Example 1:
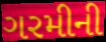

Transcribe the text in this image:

ગરમીની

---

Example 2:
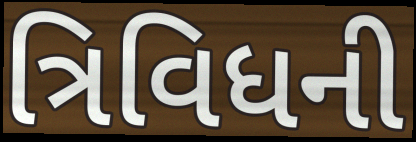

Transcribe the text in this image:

ત્રિવિધની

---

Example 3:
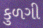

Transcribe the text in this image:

કુળગી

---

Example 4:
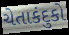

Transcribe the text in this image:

ચેતાકંદુકો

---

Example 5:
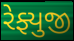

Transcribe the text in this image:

રેફ્યુજી